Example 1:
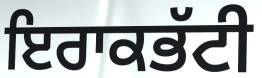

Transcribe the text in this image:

ਇਰਾਕਭੱਟੀ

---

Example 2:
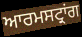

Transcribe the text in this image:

ਆਰਮਸਟ੍ਰਾਂਗ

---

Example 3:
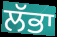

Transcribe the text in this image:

ਲੱਭਾ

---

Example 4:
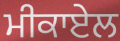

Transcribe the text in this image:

ਮੀਕਾਏਲ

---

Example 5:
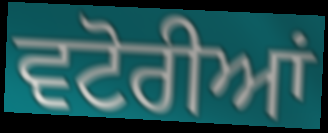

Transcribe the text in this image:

ਵਟੋਰੀਆਂ